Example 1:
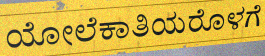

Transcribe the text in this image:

ಯೋಲೆಕಾತಿಯರೊಳಗೆ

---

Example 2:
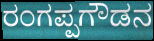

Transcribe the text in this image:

ರಂಗಪ್ಪಗೌಡನ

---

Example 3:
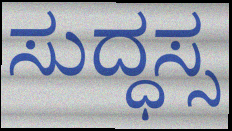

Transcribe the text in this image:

ಸುದ್ಧಸ್ಸ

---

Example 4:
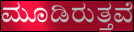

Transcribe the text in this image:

ಮೂಡಿರುತ್ತವೆ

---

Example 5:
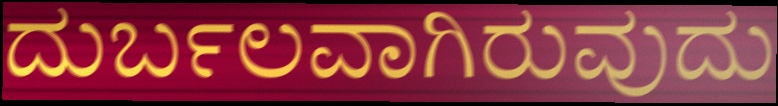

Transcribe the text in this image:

ದುರ್ಬಲವಾಗಿರುವುದು